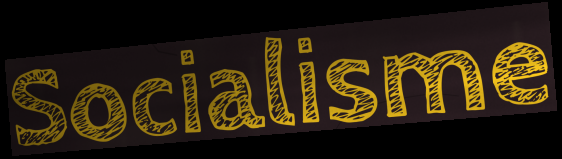
Socialisme